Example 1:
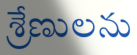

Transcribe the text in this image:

శ్రేణులను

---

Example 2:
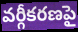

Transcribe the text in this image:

వర్గీకరణపై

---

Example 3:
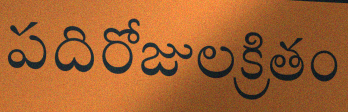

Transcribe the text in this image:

పదిరోజులక్రితం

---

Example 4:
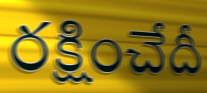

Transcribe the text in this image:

రక్షించేదీ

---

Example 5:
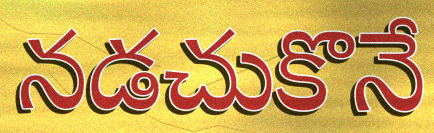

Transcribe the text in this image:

నడచుకొనే